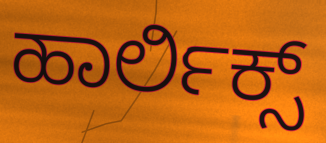
ಹಾರ್ಲಿಕ್ಸ್